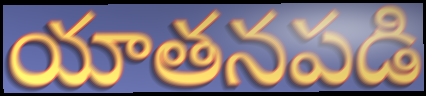
యాతనపడి